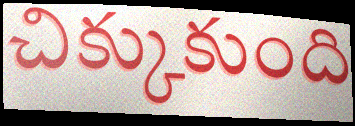
చిక్కుకుంది